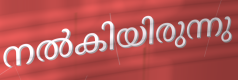
നൽകിയിരുന്നു